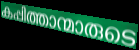
കപ്പിത്താന്മാരുടെ